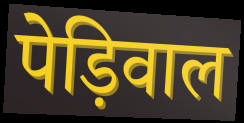
पेड़िवाल